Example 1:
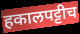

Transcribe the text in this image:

हकालपट्टीच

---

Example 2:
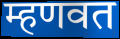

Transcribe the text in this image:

म्हणवत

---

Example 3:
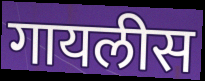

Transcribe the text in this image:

गायलीस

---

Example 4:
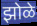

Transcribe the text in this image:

झोळे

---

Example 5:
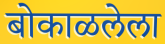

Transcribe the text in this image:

बोकाळलेला